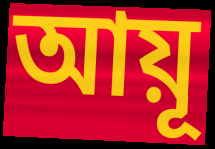
আয়ূ